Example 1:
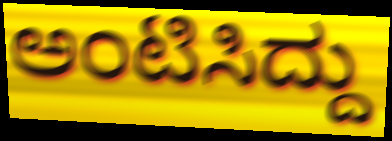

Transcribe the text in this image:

ಅಂಟಿಸಿದ್ದು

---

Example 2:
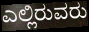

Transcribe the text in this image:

ಎಲ್ಲಿರುವರು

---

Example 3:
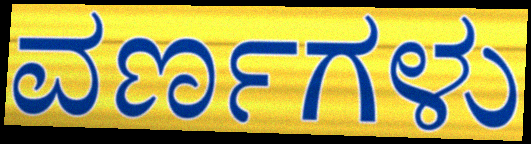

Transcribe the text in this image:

ವರ್ಣಗಳು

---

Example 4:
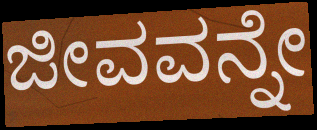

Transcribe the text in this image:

ಜೀವವನ್ನೇ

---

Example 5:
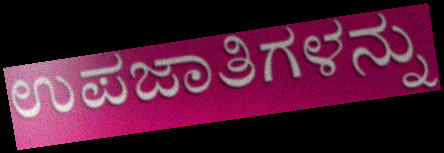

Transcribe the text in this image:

ಉಪಜಾತಿಗಳನ್ನು